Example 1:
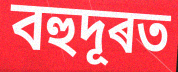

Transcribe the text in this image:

বহুদূৰত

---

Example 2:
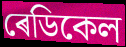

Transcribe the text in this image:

ৰেডিকেল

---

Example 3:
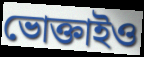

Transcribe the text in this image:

ভোক্তাইও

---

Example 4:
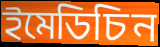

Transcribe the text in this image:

ইমেডিচিন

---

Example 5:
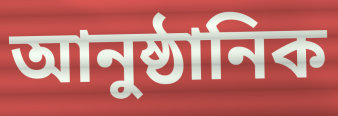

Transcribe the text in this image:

আনুষ্ঠানিক